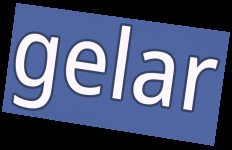
gelar